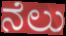
ನೆಲು